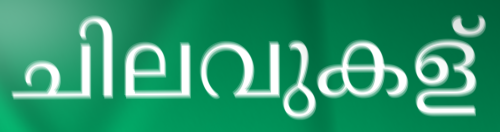
ചിലവുകള്